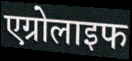
एग्रोलाइफ